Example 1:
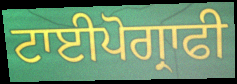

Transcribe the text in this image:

ਟਾਈਪੋਗ੍ਰਾਫੀ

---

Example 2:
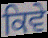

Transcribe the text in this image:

ਕਿਵੇ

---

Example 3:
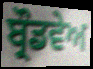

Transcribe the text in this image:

ਬ੍ਰੌਡਵੇਅ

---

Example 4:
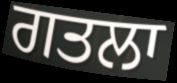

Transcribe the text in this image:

ਗਤਲਾ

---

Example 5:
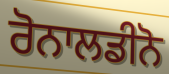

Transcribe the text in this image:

ਰੋਨਾਲਡੀਨੋ